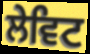
ਲੇਵਿਟ